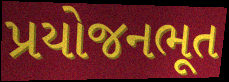
પ્રયોજનભૂત